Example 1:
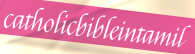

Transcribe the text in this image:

catholicbibleintamil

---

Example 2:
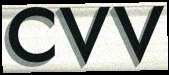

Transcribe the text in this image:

cvv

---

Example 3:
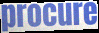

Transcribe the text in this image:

procure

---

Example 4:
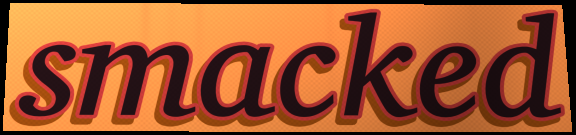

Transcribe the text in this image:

smacked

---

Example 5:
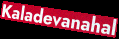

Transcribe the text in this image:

Kaladevanahal